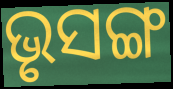
ଭୃସଙ୍ଗ